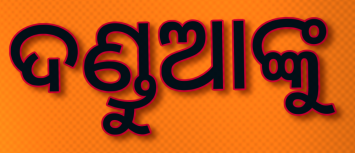
ଦଣ୍ଡୁଆଙ୍କୁ